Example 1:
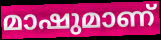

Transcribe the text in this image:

മാഷുമാണ്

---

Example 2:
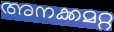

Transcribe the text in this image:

അനക്കമറ്റ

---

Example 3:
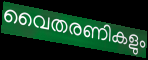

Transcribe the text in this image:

വൈതരണികളും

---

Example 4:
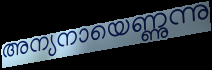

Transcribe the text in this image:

അന്യനായെണ്ണുന്നു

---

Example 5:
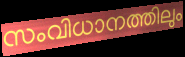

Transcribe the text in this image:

സംവിധാനത്തിലും